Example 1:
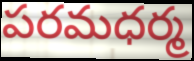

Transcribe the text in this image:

పరమధర్మ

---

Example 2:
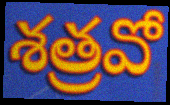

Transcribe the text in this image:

శత్రవో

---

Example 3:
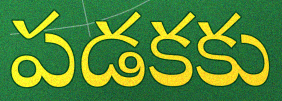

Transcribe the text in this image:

పడకకు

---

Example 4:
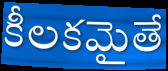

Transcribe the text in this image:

కీలకమైతే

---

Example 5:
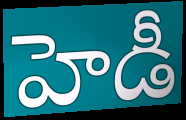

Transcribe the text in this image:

హెడీ